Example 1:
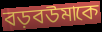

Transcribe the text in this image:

বড়বউমাকে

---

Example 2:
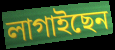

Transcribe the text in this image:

লাগাইছেন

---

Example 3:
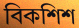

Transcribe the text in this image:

বিকশিশ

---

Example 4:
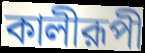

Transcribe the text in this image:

কালীরূপী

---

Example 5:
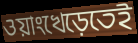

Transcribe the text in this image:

ওয়াংখেড়েতেই